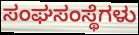
ಸಂಘಸಂಸ್ಥೆಗಳು